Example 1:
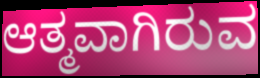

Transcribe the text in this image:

ಆತ್ಮವಾಗಿರುವ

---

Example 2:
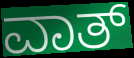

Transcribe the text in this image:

ವಾತ್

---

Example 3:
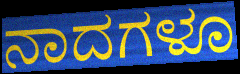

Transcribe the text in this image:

ನಾದಗಳೂ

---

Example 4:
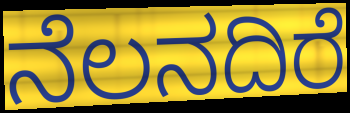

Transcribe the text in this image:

ನೆಲನದಿರೆ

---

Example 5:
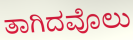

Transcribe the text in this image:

ತಾಗಿದವೊಲು